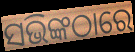
ସଭିଙ୍କଠାରେ